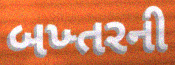
બખ્તરની